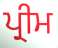
ਪ੍ਰੀਮ